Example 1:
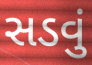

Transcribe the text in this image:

સડવું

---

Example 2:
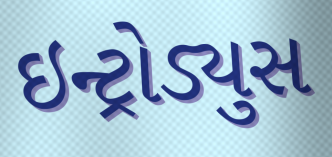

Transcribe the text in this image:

ઇન્ટ્રોડ્યુસ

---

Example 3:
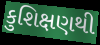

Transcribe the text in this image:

કુશિક્ષણથી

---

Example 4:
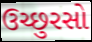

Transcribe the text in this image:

ઉચ્છુરસો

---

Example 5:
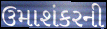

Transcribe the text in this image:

ઉમાશંકરની